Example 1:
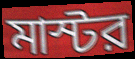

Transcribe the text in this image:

মাস্টর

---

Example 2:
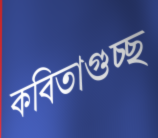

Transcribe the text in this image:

কবিতাগুচ্ছ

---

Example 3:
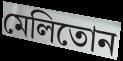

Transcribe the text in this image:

মেলিতোন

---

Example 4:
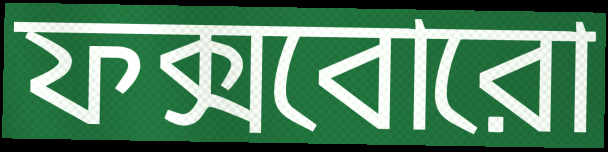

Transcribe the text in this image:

ফক্সবোরো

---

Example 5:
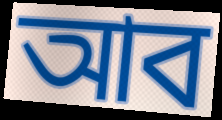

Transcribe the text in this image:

আব